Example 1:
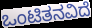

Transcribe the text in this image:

ಒಂಟಿತನವಿದೆ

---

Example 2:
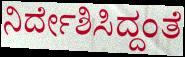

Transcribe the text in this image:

ನಿರ್ದೇಶಿಸಿದ್ದಂತೆ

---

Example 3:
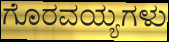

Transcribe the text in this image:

ಗೊರವಯ್ಯಗಳು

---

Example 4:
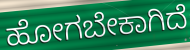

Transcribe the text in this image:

ಹೋಗಬೇಕಾಗಿದೆ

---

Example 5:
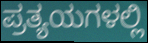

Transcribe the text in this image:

ಪ್ರತ್ಯಯಗಳಲ್ಲಿ